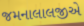
જમનાલાલજીએ